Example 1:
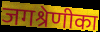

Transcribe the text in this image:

जगश्रेणीका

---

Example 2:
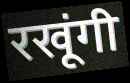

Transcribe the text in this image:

रखूंगी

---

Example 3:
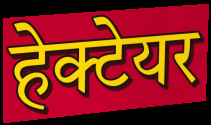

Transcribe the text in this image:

हेक्टेयर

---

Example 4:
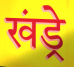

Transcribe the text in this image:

खंड्रे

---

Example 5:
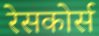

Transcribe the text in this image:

रेसकोर्स